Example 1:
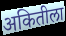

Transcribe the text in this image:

अकितीला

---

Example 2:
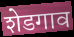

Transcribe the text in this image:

शेडगाव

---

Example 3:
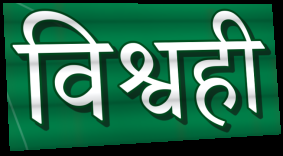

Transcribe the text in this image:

विश्वही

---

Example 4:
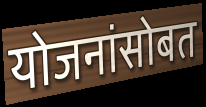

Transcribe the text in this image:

योजनांसोबत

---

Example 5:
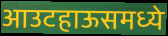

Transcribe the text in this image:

आउटहाऊसमध्ये